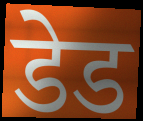
डेड